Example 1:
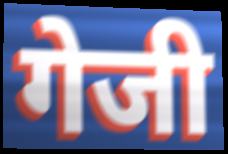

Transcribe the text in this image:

गेजी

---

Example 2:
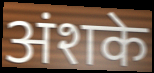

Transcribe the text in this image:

अंशके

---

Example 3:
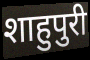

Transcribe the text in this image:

शाहुपुरी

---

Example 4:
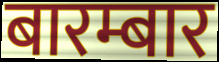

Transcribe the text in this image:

बारम्‍बार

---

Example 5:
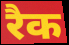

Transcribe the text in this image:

रैक